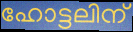
ഹോട്ടലിന്